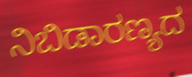
ನಿಬಿಡಾರಣ್ಯದ